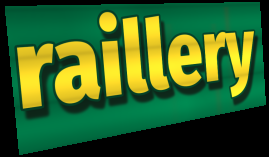
raillery